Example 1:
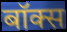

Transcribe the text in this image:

बॉक्‍स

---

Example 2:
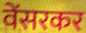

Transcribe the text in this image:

वेंसरकर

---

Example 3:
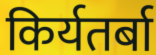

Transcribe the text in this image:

किर्यतर्बा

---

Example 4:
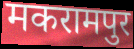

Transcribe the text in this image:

मकरामपुर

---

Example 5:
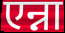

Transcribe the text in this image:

एन्ना